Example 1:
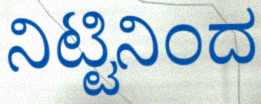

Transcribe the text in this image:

ನಿಟ್ಟಿನಿಂದ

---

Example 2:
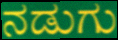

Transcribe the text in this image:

ನಡುಗು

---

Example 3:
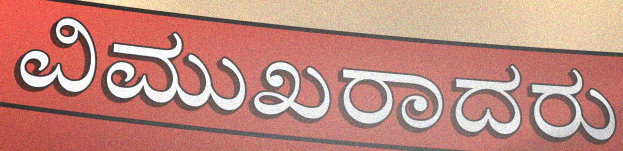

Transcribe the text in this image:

ವಿಮುಖರಾದರು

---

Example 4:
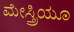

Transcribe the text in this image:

ಮೇಸ್ತ್ರಿಯೂ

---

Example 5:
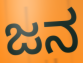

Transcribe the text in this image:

ಜನ